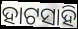
ହାଟସାହି